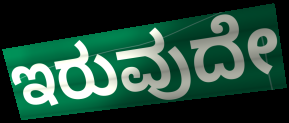
ಇರುವುದೇ